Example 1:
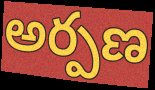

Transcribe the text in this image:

అర్పణ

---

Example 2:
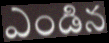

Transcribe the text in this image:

ఎండిన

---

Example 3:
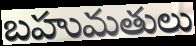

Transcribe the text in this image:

బహుమతులు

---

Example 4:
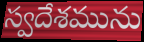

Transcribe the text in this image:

స్వదేశమును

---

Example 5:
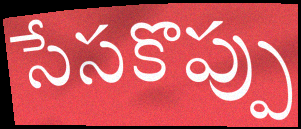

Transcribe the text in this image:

సేసకొప్పు